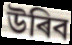
উৰিব